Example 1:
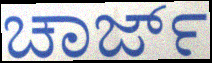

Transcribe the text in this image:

ಚಾರ್ಜ್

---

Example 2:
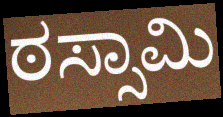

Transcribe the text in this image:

ಠಸ್ಸಾಮಿ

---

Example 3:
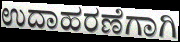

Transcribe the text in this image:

ಉದಾಹರಣೆಗಾಗಿ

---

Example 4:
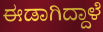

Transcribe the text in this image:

ಈಡಾಗಿದ್ದಾಳೆ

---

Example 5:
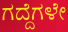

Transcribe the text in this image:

ಗದ್ದೆಗಳೇ